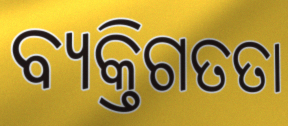
ବ୍ୟକ୍ତିଗତତା